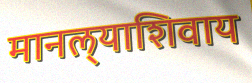
मानल्याशिवाय